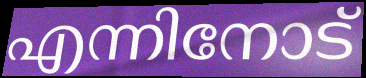
എന്നിനോട്